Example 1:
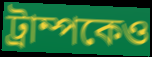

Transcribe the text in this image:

ট্রাম্পকেও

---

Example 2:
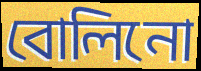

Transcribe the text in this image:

বোলিনো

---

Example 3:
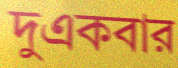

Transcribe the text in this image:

দুএকবার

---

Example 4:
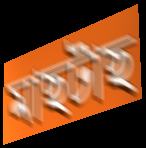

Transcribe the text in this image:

মাছটাছ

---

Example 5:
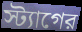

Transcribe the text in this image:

স্ট্যাগের